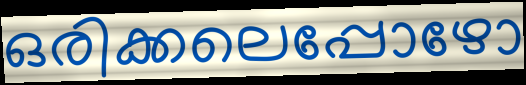
ഒരിക്കലെപ്പോഴോ